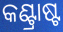
କଣ୍ଟ୍ରାଷ୍ଟ